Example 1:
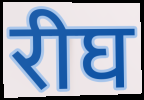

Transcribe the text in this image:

रीघ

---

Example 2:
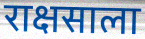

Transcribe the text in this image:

राक्षसाला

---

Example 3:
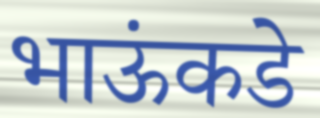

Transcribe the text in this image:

भाऊंकडे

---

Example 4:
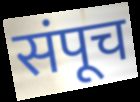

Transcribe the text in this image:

संपूच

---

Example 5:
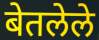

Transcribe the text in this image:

बेतलेले